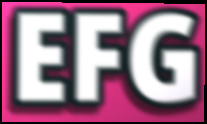
EFG